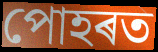
পোহৰত